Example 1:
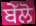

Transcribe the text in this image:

ਬੇੱਲੋ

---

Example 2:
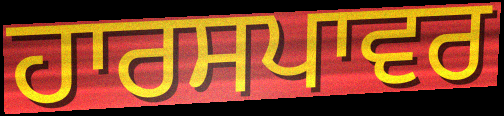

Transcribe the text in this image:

ਹਾਰਸਪਾਵਰ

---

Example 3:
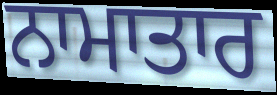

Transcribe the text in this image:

ਨਾਮਾਤਾਰ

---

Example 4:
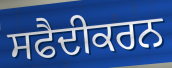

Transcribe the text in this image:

ਸਫੈਦੀਕਰਨ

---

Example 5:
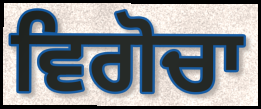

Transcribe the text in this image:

ਵਿਗੋਚਾ